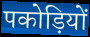
पकोड़ियों